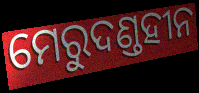
ମେରୁଦଣ୍ଡହୀନ